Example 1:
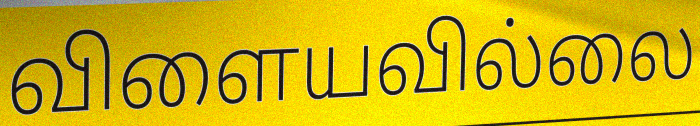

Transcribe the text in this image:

விளையவில்லை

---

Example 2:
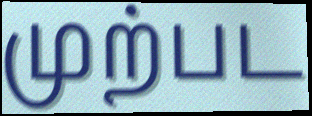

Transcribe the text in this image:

முற்பட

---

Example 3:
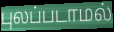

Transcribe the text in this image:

புலப்படாமல்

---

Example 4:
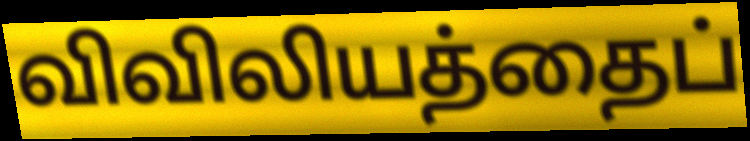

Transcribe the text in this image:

விவிலியத்தைப்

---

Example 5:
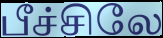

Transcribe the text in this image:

பீச்சிலே